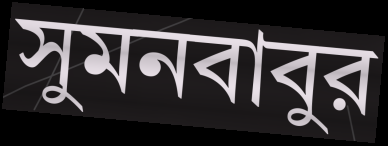
সুমনবাবুর